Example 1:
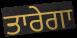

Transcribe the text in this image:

ਤਾਰੇਗਾ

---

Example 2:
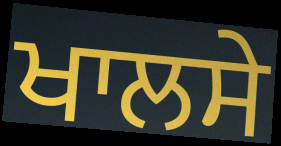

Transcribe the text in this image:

ਖਾਲਸੇ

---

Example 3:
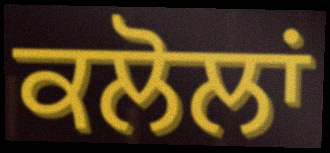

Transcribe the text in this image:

ਕਲੋਲਾਂ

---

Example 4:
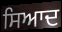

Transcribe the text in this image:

ਸਿਆਦ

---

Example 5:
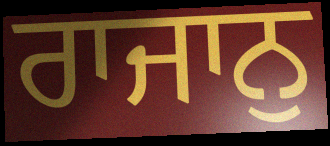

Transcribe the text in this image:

ਰਾਜਾਨੁ